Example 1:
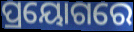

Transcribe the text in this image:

ପ୍ରୟୋଗରେ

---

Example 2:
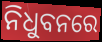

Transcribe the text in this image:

ନିଧୁବନରେ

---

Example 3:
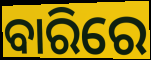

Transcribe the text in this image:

ବାରିରେ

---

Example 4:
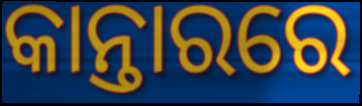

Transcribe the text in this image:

କାନ୍ତାରରେ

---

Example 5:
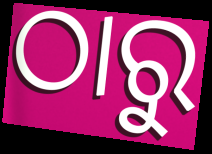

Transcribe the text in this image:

ଠାରୁ